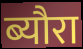
ब्यौरा